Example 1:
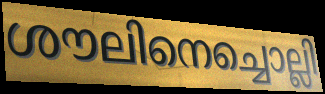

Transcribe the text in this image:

ശൗലിനെച്ചൊല്ലി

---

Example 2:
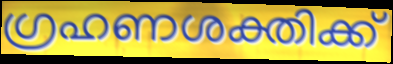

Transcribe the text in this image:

ഗ്രഹണശക്തിക്ക്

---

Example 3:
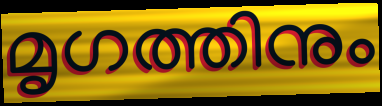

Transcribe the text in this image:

മൃഗത്തിനും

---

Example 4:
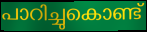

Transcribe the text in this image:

പാറിച്ചുകൊണ്ട്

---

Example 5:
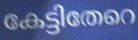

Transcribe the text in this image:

കേട്ടിതേറെ